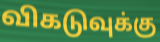
விகடுவுக்கு